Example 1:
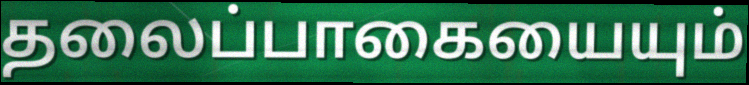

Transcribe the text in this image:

தலைப்பாகையையும்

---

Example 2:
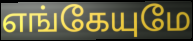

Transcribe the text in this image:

எங்கேயுமே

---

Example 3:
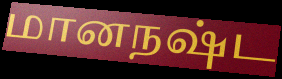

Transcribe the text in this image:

மானநஷ்ட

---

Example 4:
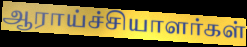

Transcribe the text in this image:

ஆராய்ச்சியாளர்கள்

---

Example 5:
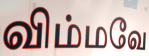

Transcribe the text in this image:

விம்மவே